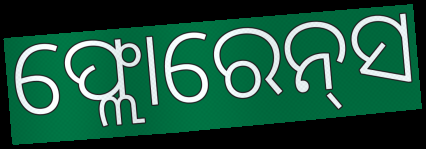
ଫ୍ଲୋରେନ୍‌ସ